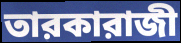
তারকারাজী